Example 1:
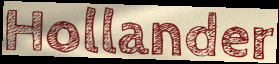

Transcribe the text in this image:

Hollander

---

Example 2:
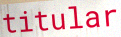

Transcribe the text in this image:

titular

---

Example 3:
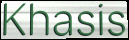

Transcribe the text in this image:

Khasis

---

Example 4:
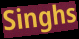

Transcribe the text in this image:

Singhs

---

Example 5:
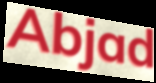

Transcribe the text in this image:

Abjad